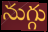
నుగ్గు